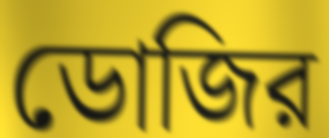
ডোজির